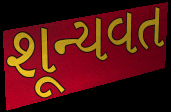
શૂન્યવત